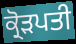
ਕ੍ਰੋੜਪਤੀ